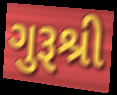
ગુરૂશ્રી